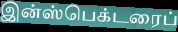
இன்ஸ்பெக்டரைப்